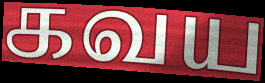
கவய